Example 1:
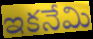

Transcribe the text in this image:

ఇకనేమి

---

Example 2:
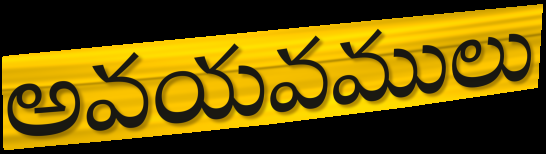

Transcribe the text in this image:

అవయవములు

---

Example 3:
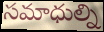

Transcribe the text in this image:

సమాధుల్ని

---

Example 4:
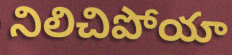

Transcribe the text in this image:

నిలిచిపోయా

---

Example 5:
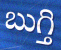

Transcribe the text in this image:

బుగ్తి